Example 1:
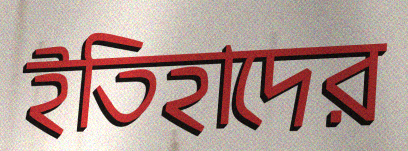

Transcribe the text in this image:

ইতিহাদের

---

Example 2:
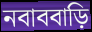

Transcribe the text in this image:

নবাববাড়ি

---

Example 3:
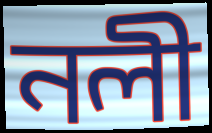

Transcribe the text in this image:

নলী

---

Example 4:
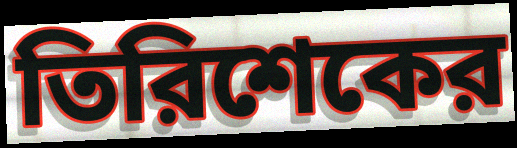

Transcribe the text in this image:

তিরিশেকের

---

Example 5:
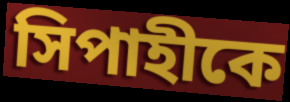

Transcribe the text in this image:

সিপাহীকে